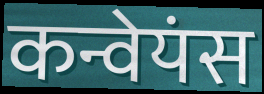
कन्वेयंस